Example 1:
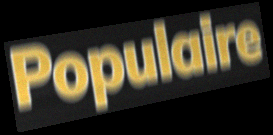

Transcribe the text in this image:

Populaire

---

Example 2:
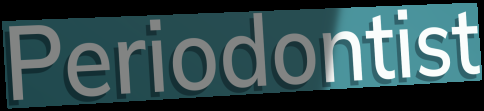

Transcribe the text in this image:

Periodontist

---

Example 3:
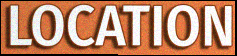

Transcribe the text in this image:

LOCATION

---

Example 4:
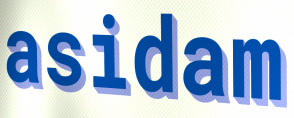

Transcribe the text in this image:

asidam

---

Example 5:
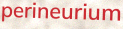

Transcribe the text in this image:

perineurium